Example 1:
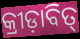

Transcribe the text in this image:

କ୍ରୀଡ଼ାବିତ୍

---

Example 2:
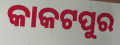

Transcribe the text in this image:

କାକଟପୁର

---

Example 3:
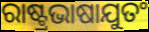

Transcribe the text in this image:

ରାଷ୍ଟ୍ରଭାଷାଯୁତଂ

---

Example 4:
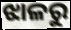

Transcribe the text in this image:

ଝାଳରୁ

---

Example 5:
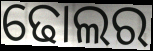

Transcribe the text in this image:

ଢୋଲର